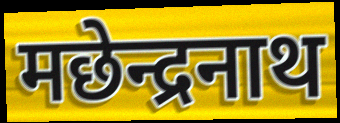
मछेन्द्रनाथ